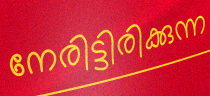
നേരിട്ടിരിക്കുന്ന